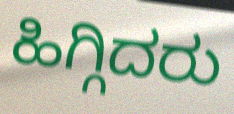
ಹಿಗ್ಗಿದರು